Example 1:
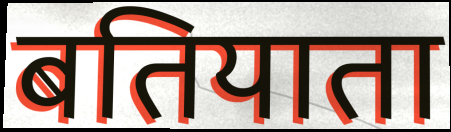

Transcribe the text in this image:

बतियाता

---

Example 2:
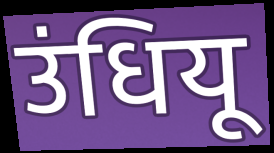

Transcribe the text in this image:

उंधियू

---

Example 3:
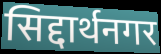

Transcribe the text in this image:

सिद्दार्थनगर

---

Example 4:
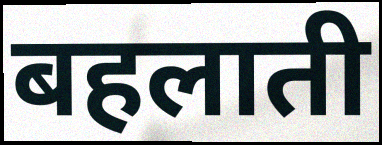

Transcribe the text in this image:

बहलाती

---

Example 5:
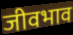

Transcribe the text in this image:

जीवभाव